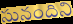
సునందిని